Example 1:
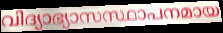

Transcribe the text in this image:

വിദ്യാഭ്യാസസ്ഥാപനമായ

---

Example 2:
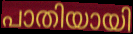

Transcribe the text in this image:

പാതിയായി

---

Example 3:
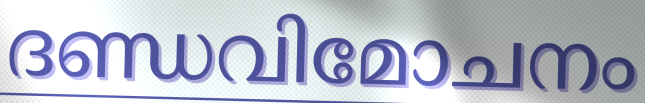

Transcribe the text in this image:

ദണ്ഡവിമോചനം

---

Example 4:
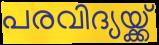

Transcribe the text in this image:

പരവിദ്യയ്ക്ക്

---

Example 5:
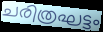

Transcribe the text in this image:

ചരിത്രഘട്ടം